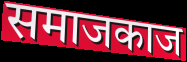
समाजकाज